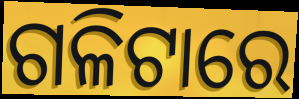
ଗଳିଟାରେ